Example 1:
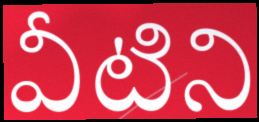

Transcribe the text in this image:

వీటిని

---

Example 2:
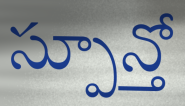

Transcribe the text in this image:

స్పూన్తో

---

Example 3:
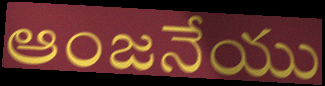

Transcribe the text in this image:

ఆంజనేయు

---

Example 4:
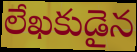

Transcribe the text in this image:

లేఖకుడైన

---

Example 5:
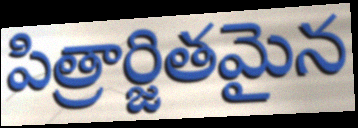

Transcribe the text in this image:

పిత్రార్జితమైన